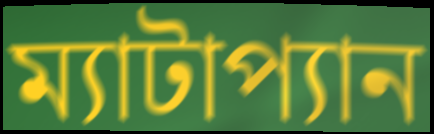
ম্যাটাপ্যান